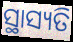
ସ୍ଥାସ୍ୟତି